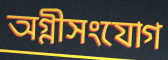
অগ্নীসংযোগ